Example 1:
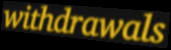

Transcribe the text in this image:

withdrawals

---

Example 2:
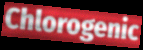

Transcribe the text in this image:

Chlorogenic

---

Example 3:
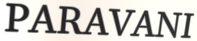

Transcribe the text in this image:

PARAVANI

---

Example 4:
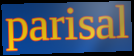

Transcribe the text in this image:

parisal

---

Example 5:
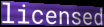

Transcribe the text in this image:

licensed